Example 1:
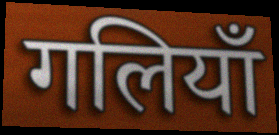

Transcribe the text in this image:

गलियाँ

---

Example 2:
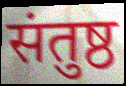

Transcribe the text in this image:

संतुष्ठ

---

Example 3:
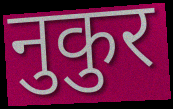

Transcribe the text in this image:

नुकुर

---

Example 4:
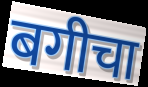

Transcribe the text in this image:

बगीचा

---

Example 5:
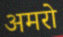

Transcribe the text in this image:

अमरो